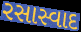
રસાસ્વાદ